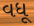
વધૂ